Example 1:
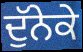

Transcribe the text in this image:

ਦੁੱਨੇਕੇ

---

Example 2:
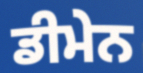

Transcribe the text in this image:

ਡੀਮੇਨ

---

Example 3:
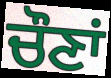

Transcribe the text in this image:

ਚੌਣਾਂ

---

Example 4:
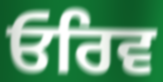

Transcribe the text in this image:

ਓਰਿਵ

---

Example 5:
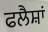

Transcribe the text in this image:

ਫਲੈਸ਼ਾਂ